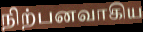
நிற்பனவாகிய